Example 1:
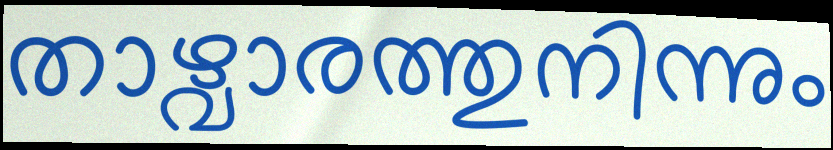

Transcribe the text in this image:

താഴ്വാരത്തുനിന്നും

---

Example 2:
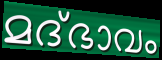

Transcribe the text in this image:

മദ്ഭാവം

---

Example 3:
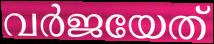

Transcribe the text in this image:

വർജയേത്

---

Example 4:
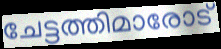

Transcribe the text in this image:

ചേട്ടത്തിമാരോട്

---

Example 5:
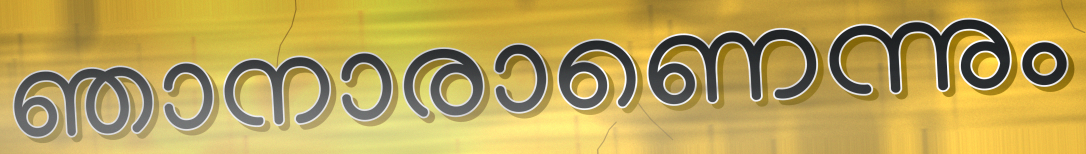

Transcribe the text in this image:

ഞാനാരാണെന്നും